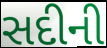
સદીની